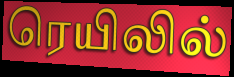
ரெயிலில்